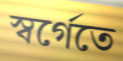
স্বর্গেতে